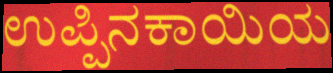
ಉಪ್ಪಿನಕಾಯಿಯ